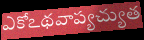
ఎకోఽథవాప్యచ్యుత